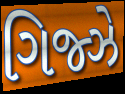
ગિજ્ઝે